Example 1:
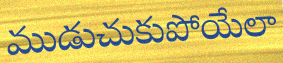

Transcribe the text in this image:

ముడుచుకుపోయేలా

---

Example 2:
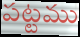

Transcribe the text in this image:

పట్టము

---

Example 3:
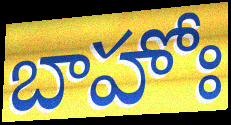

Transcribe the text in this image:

బాహోః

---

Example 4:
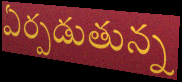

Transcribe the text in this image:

ఏర్పడుతున్న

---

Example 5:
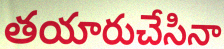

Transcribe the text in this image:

తయారుచేసినా